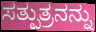
ಸತ್ಪುತ್ರನನ್ನು